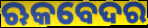
ଋକବେଦର